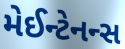
મેઈન્ટેનન્સ